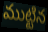
ముట్టిన